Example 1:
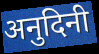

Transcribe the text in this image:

अनुदिनी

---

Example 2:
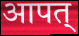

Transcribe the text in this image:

आपत्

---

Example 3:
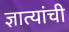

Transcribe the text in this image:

ज्ञात्यांची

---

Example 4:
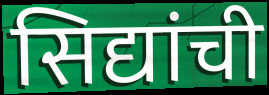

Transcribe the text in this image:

सिद्यांची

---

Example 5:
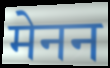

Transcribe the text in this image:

मेनन